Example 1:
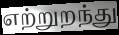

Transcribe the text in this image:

எற்றுறந்து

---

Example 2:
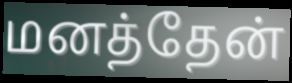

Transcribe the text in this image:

மனத்தேன்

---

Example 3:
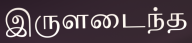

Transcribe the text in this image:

இருளடைந்த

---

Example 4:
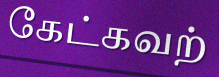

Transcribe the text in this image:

கேட்கவற்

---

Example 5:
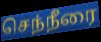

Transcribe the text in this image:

செந்நீரை